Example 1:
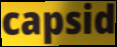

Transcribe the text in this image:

capsid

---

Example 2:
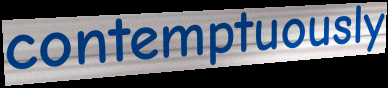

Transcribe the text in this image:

contemptuously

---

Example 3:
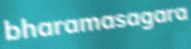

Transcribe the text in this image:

bharamasagara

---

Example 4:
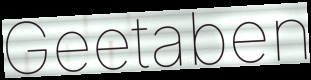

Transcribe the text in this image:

Geetaben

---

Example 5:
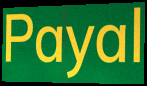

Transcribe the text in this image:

Payal